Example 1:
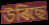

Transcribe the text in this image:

উৰিছে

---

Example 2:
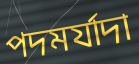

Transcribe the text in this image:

পদমৰ্যাদা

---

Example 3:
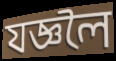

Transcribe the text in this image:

যজ্ঞলৈ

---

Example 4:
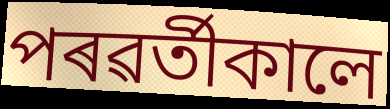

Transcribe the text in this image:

পৰৱৰ্তীকালে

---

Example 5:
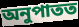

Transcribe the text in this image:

অনুপাতত